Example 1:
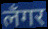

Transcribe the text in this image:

लँगर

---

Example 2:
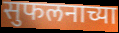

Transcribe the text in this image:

सुफलनाच्या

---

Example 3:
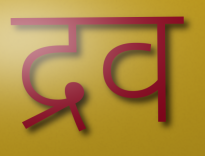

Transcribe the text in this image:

द्रव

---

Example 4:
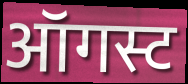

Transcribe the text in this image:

ऑगस्ट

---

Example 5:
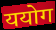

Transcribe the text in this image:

ययोग